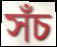
সঁচ